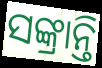
ସଙ୍କ୍ରାନ୍ତି